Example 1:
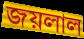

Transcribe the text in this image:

জয়লাল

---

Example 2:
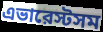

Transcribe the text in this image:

এভারেস্টসম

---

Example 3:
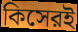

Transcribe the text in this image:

কিসেরই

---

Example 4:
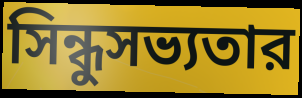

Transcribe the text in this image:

সিন্ধুসভ্যতার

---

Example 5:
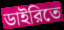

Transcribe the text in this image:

ডাইরিতে